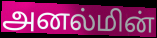
அனல்மின்